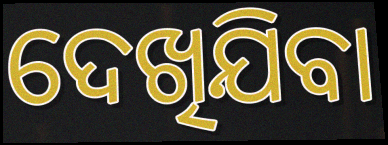
ଦେଖିଯିବା